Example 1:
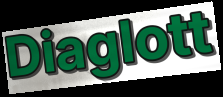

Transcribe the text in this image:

Diaglott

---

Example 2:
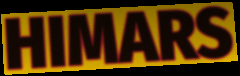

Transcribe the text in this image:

HIMARS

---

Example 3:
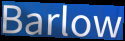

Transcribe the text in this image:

Barlow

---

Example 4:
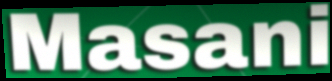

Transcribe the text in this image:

Masani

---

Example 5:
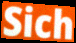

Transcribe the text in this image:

Sich